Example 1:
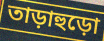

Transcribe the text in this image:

তাড়াহুড়ো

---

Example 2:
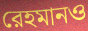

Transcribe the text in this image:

রেহমানও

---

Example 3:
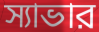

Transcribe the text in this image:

স্যাভার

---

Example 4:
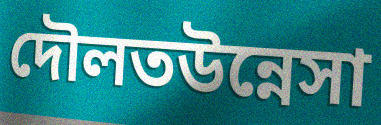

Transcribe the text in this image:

দৌলতউন্নেসা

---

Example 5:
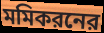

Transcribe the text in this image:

মমিকরনের